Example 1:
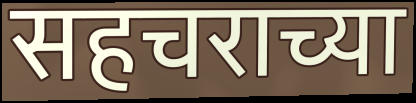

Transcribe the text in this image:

सहचराच्या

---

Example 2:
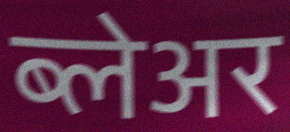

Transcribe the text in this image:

ब्लेअर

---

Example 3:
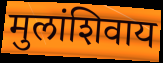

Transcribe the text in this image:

मुलांशिवाय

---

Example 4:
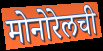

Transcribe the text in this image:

मोनोरेलची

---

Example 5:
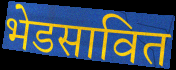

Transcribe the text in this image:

भेडसावित